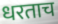
धरताच